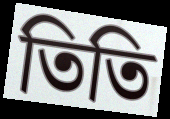
তিতি